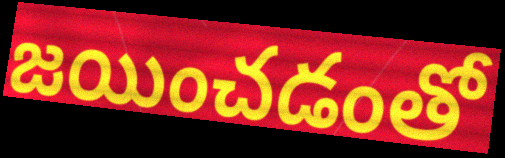
జయించడంతో